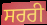
ਸਰਰੀ